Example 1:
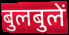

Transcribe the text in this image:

बुलबुलें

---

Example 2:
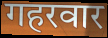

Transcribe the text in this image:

गहरवार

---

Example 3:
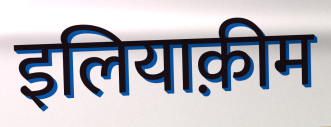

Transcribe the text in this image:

इलियाक़ीम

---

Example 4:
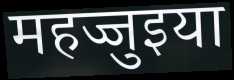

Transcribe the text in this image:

महज्जुइया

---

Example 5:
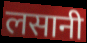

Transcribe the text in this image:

लसानी